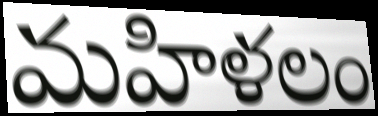
మహిళలం